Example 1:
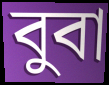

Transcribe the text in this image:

বুবা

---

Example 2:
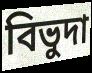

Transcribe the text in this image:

বিভুদা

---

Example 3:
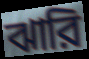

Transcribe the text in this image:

ঝারি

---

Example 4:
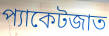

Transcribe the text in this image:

প্যাকেটজাত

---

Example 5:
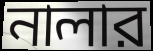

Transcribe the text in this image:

নালার